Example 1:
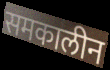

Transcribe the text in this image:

समकालीन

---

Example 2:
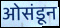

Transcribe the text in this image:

ओसंडून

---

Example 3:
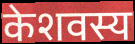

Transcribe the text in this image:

केशवस्य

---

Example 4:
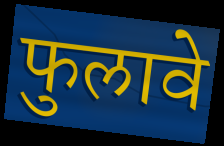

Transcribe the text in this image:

फुलावे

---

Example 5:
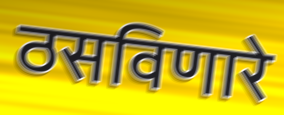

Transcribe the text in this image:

ठसविणारे